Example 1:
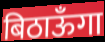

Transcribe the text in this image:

बिठाऊँगा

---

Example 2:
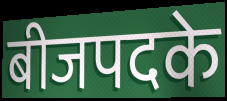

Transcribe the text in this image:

बीजपदके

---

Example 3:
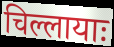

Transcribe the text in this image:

चिल्लायाः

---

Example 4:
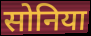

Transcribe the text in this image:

सोनिया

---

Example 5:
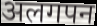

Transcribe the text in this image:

अलगपन